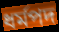
ধর্মপদ